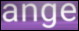
ange